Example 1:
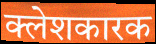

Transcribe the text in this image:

क्लेशकारक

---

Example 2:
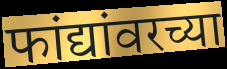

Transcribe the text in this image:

फांद्यांवरच्या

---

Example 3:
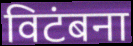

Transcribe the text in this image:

विटंबना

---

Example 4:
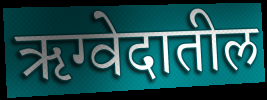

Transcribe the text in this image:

ऋग्वेदातील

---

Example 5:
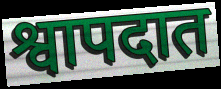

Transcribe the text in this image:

श्वापदात